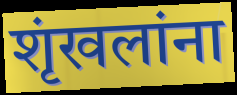
शृंखलांना